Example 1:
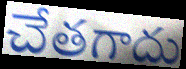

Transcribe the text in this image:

చేతగాదు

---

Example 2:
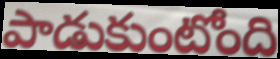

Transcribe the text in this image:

పాడుకుంటోంది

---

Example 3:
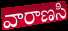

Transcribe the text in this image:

వారాణసి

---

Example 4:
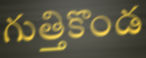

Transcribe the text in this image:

గుత్తికొండ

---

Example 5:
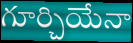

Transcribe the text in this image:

గూర్చియేనా